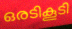
ഒരടികൂടി